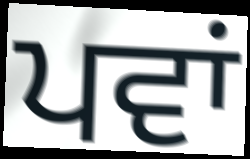
ਪਵਾਂ